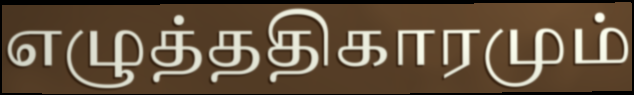
எழுத்ததிகாரமும்